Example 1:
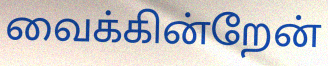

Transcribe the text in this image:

வைக்கின்றேன்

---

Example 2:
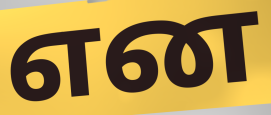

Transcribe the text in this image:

என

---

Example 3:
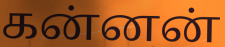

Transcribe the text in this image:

கன்னன்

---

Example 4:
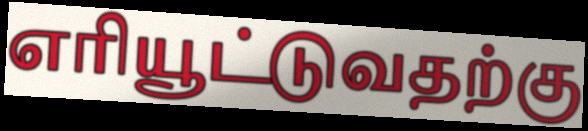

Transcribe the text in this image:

எரியூட்டுவதற்கு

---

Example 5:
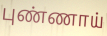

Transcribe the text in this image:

புண்ணாய்